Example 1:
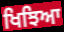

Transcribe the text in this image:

ਖਿਝਿਆ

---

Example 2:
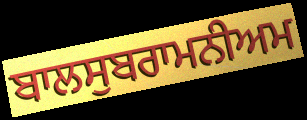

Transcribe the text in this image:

ਬਾਲਸੁਬਰਾਮਨੀਅਮ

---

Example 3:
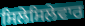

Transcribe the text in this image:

ਸਿਲੇਸਿਲੇਵਾਰ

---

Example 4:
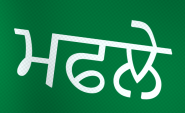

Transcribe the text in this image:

ਮਫਲੇ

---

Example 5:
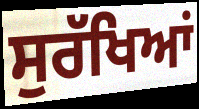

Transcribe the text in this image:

ਸੁਰੱਖਿਆਂ